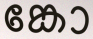
ങ്കോ